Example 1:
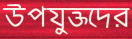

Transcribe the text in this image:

উপযুক্তদের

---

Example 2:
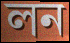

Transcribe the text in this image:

লন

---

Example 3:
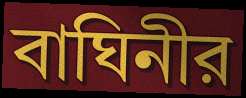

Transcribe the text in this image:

বাঘিনীর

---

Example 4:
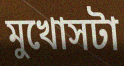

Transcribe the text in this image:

মুখোসটা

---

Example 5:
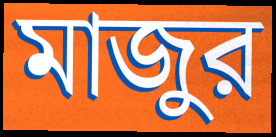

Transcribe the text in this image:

মাজুর